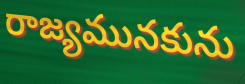
రాజ్యమునకును